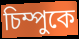
চিম্পুকে